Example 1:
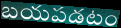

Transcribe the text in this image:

బయపడటం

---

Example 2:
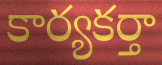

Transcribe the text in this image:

కార్యకర్తా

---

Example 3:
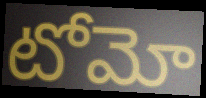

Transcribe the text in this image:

టోమో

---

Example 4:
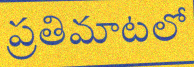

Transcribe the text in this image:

ప్రతిమాటలో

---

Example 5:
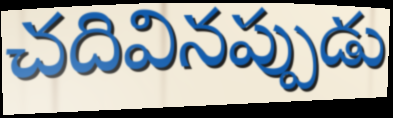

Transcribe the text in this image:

చదివినప్పుడు